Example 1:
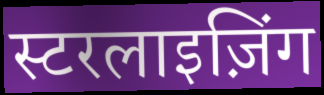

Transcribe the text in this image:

स्टरलाइज़िंग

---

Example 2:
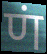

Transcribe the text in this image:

णं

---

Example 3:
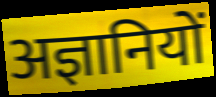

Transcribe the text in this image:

अज्ञानियों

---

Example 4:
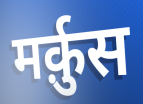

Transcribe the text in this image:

मर्क़ुस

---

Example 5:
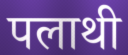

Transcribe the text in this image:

पलाथी